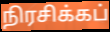
நிரசிக்கப்